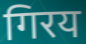
गिरय